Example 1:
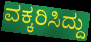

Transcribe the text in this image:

ವಕ್ಕರಿಸಿದ್ದು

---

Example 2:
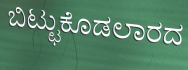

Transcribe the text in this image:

ಬಿಟ್ಟುಕೊಡಲಾರದ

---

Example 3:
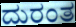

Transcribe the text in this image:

ದುರಂತ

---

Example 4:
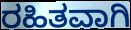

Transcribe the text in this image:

ರಹಿತವಾಗಿ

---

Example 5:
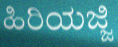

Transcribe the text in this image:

ಹಿರಿಯಜ್ಜಿ